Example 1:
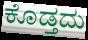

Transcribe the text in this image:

ಕೊಡ್ತದು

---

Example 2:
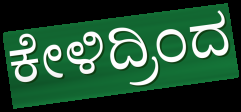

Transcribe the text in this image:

ಕೇಳಿದ್ರಿಂದ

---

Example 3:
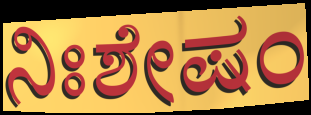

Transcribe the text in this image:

ನಿಃಶೇಷಂ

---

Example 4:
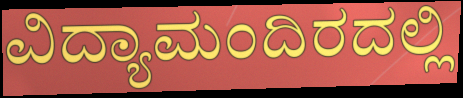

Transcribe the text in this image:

ವಿದ್ಯಾಮಂದಿರದಲ್ಲಿ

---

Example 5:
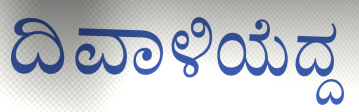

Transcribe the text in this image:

ದಿವಾಳಿಯೆದ್ದ